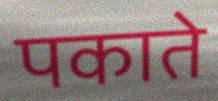
पकाते